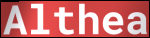
Althea